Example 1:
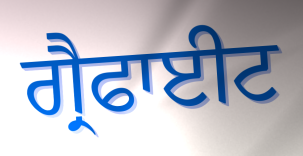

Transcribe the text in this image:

ਗ੍ਰੈਫਾਈਟ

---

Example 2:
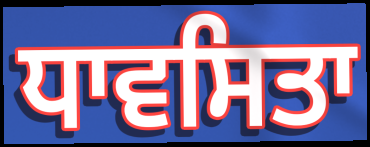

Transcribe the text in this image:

ਧਾਵਸਿਤਾ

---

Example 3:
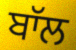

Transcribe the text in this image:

ਬਾੱਲ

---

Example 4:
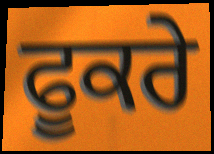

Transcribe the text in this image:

ਫੂਕਰੇ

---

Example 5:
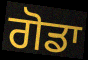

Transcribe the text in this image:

ਗੋਡਾ